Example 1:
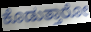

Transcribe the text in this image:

ಕೊಡುತ್ತಾರೋ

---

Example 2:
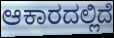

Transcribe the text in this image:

ಆಕಾರದಲ್ಲಿದೆ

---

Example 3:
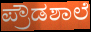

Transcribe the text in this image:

ಪ್ರೌಡಶಾಲೆ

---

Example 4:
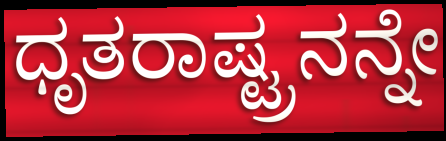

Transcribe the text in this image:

ಧೃತರಾಷ್ಟ್ರನನ್ನೇ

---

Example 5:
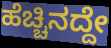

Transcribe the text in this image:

ಹೆಚ್ಚಿನದ್ದೇ